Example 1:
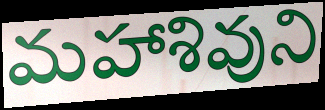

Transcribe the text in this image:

మహాశివుని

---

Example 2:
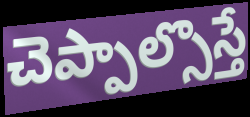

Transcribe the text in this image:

చెప్పాల్సొస్తే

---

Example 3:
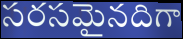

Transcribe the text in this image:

సరసమైనదిగా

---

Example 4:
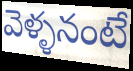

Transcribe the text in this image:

వెళ్ళనంటే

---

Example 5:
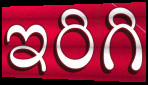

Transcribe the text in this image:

ఇరిగి